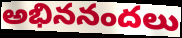
అభిననందలు